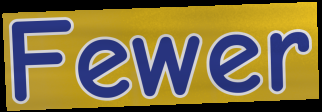
Fewer